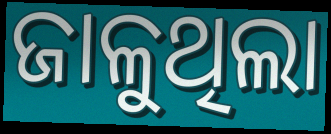
ଜାଳୁଥିଲା